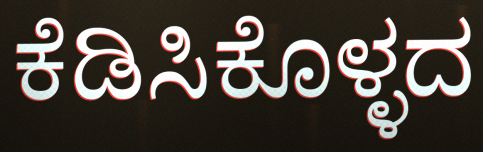
ಕೆಡಿಸಿಕೊಳ್ಳದ